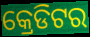
କ୍ରେଡିଟର